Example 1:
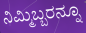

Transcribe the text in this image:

ನಿಮ್ಮಿಬ್ಬರನ್ನೂ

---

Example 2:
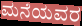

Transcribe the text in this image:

ಮನೆಯವರ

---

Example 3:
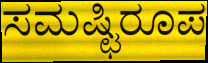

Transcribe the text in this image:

ಸಮಷ್ಟಿರೂಪ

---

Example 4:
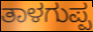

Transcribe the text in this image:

ತಾಳಗುಪ್ಪ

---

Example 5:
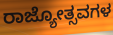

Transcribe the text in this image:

ರಾಜ್ಯೋತ್ಸವಗಳ